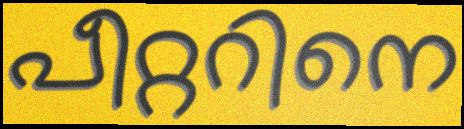
പീറ്ററിനെ